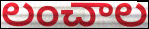
లంచాల